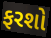
ફરશો